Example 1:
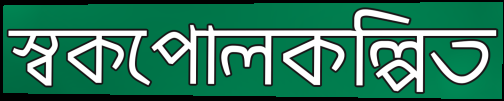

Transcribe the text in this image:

স্বকপোলকল্পিত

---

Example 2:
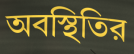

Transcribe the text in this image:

অবস্থিতির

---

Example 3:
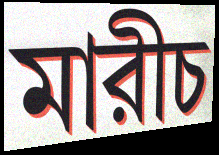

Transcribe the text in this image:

মারীচ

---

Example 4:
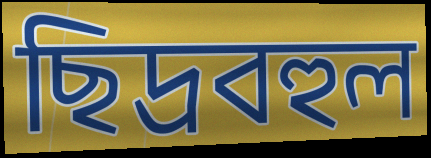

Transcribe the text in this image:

ছিদ্রবহুল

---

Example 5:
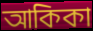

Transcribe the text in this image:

আকিকা